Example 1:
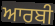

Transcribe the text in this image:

ਆਰਬੀ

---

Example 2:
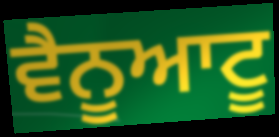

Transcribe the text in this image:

ਵੈਨੂਆਟੂ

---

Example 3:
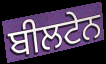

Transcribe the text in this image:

ਬੀਲਟੇਨ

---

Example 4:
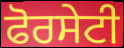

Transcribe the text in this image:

ਫੋਰਸੇਟੀ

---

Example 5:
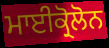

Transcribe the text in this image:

ਮਾਈਕ੍ਰੋਲੋਨ